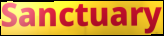
Sanctuary